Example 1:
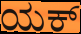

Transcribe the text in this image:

ಯಕ್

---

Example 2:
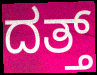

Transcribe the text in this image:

ದತ್ತ್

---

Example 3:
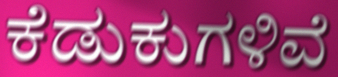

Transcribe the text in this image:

ಕೆಡುಕುಗಳಿವೆ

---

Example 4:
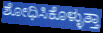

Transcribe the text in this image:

ಶೋಧಿಸಿಕೊಳ್ಳುತ್ತಾ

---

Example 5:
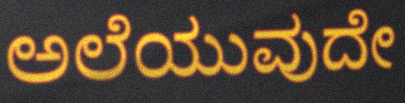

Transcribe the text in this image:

ಅಲೆಯುವುದೇ